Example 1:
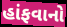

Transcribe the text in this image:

હાંફવાનો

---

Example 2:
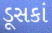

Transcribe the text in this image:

ડૂસકાં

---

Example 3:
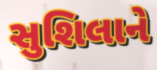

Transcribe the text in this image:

સુશિલાને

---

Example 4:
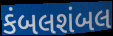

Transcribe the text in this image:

કંબલશંબલ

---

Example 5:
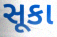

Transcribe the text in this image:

સૂકા